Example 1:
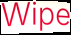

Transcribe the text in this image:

Wipe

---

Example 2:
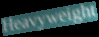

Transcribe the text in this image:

Heavyweight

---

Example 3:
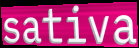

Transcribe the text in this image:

sativa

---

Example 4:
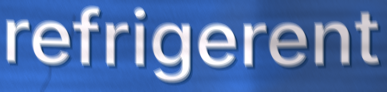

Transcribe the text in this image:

refrigerent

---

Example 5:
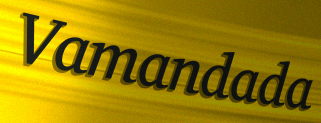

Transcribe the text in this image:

Vamandada